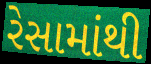
રેસામાંથી